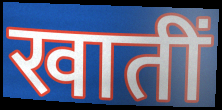
खातीं